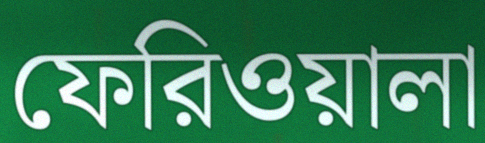
ফেরিওয়ালা